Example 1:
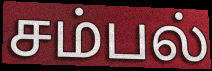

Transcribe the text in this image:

சம்பல்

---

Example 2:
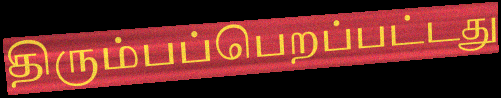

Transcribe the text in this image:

திரும்பப்பெறப்பட்டது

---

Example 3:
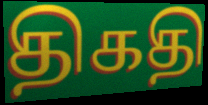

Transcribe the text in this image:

திகதி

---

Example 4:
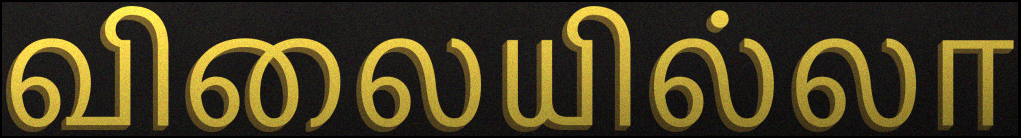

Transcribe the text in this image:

விலையில்லா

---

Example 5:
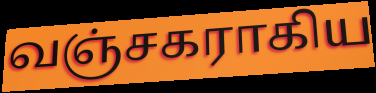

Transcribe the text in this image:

வஞ்சகராகிய